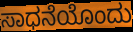
ಸಾಧನೆಯೊಂದು